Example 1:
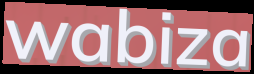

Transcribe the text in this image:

wabiza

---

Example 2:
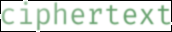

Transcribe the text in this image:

ciphertext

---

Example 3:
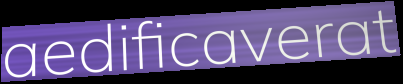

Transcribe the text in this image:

aedificaverat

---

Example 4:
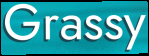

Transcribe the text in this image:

Grassy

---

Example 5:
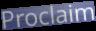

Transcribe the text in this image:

Proclaim